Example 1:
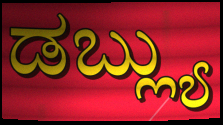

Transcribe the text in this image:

ಡಬ್ಲ್ಯು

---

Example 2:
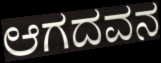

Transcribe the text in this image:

ಆಗದವನ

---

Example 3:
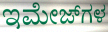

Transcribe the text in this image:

ಇಮೇಜ್‌ಗಳ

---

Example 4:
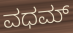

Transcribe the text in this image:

ವಧಮ್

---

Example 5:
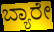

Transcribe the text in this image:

ಬ್ಯಾರೇ